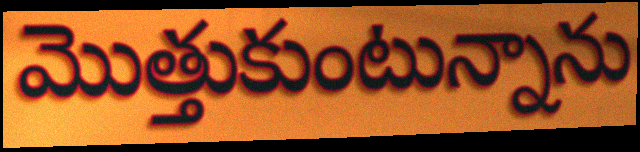
మొత్తుకుంటున్నాను